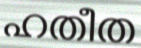
ഹതീത